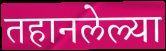
तहानलेल्या